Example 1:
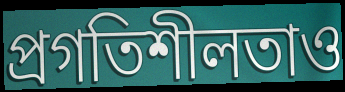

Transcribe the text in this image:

প্রগতিশীলতাও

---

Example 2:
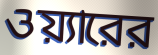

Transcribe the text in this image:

ওয়্যারের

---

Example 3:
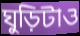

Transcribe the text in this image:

ঘুড়িটাও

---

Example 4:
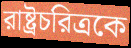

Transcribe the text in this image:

রাষ্ট্রচরিত্রকে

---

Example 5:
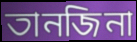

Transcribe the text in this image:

তানজিনা